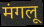
मंगलू